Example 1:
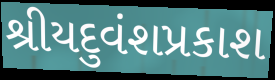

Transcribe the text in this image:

શ્રીયદુવંશપ્રકાશ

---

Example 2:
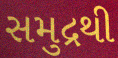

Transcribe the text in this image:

સમુદ્રથી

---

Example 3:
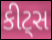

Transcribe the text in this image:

કીટ્સ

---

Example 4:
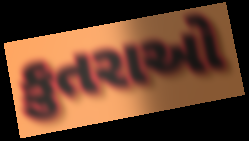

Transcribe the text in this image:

કુતરાઓ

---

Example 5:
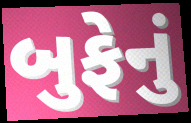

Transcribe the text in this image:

બુફેનું